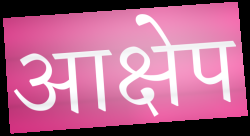
आक्षेप